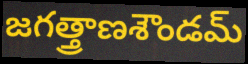
జగత్త్రాణశౌండమ్